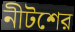
নীটশের